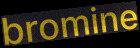
bromine